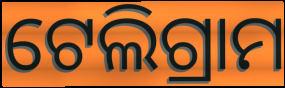
ଟେଲିଗ୍ରାମ